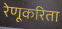
रेणूकरिता